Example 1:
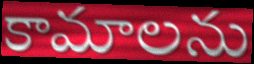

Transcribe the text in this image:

కామాలను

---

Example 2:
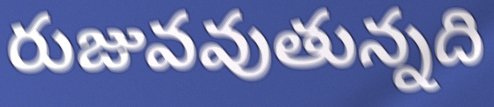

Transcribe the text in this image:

రుజువవుతున్నది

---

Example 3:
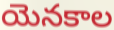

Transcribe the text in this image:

యెనకాల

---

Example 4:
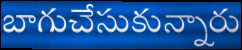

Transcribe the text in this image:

బాగుచేసుకున్నారు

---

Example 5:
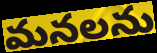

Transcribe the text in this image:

మనలను